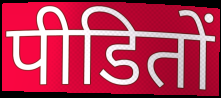
पीडितों